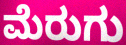
ಮೆರುಗು